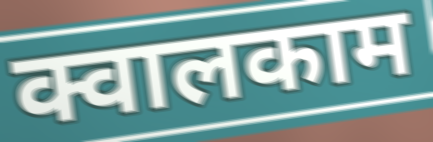
क्वालकाम